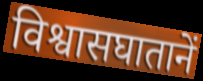
विश्वासघातानें